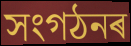
সংগঠনৰ